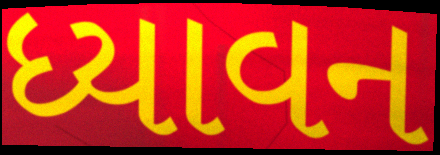
ધ્યાવન